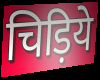
चिड़िये